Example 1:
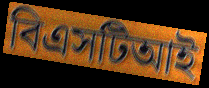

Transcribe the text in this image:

বিএসটিআই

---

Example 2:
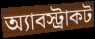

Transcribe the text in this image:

অ্যাবস্ট্রাকট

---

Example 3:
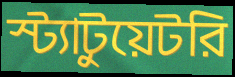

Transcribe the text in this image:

স্ট্যাটুয়েটরি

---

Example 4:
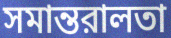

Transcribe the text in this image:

সমান্তরালতা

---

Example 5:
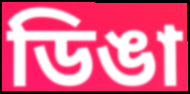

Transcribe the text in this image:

ডিঙা